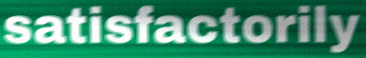
satisfactorily